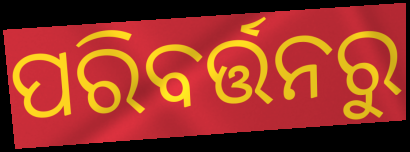
ପରିବର୍ତ୍ତନରୁ